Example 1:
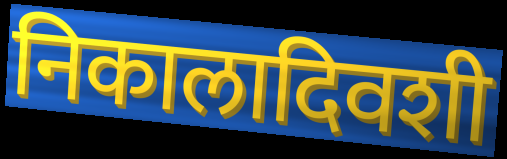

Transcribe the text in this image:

निकालादिवशी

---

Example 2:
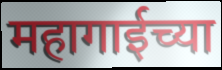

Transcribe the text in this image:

महागाईच्या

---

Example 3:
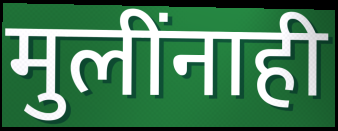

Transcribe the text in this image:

मुलींनाही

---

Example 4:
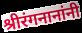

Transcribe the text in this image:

श्रीरंगनानांनी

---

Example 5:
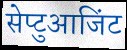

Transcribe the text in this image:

सेप्टुआजिंट